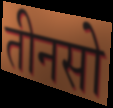
तीनसो